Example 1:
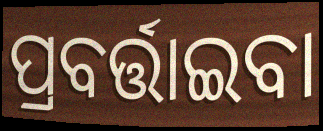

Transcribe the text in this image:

ପ୍ରବର୍ତ୍ତାଇବା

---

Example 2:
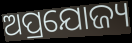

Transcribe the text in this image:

ଅପ୍ରଯୋଜ୍ୟ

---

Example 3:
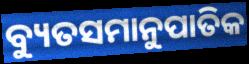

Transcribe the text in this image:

ବ୍ୟୁତସମାନୁପାତିକ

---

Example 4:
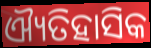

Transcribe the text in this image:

ଐ୍ୟତିହାସିକ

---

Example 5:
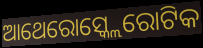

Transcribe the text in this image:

ଆଥେରୋସ୍କ୍ଲେରୋଟିକ